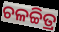
ଚଳଚ୍ଚିତ୍ର